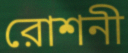
রোশনী